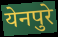
येनपुरे